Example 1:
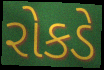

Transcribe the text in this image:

રોકડે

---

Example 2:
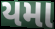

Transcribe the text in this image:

યમા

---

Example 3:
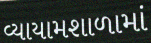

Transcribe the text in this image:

વ્યાયામશાળામાં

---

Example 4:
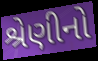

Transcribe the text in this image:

શ્રેણીનો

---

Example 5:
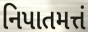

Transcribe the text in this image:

નિપાતમત્તં